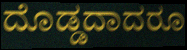
ದೊಡ್ಡದಾದರೂ